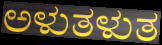
ಅಳುತಳುತ